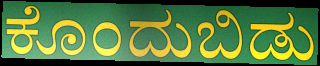
ಕೊಂದುಬಿಡು